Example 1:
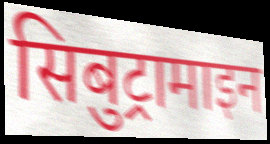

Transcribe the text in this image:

सिबुट्रामाइन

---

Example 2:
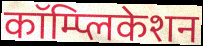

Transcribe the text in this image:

कॉम्प्लिकेशन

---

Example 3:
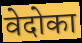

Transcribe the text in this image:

वेदोका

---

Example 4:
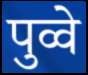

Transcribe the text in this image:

पुव्वे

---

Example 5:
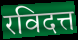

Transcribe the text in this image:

रविदत्त